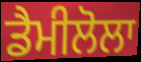
ਡੈਮੀਲੋਲਾ